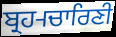
ਬ੍ਰਹ੍ਮਚਾਰਿਣੀ